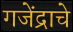
गजेंद्राचे